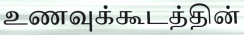
உணவுக்கூடத்தின்